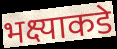
भक्ष्याकडे